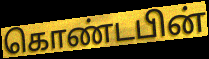
கொண்டபின்